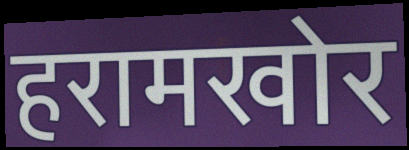
हरामखोर